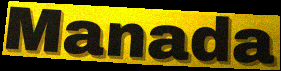
Manada